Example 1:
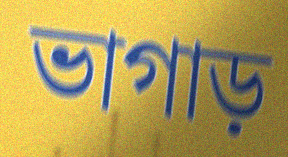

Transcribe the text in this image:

ভাগাড়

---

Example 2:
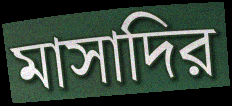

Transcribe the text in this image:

মাসাদির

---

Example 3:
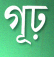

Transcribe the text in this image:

গূঢ়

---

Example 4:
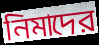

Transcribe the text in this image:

নিমাদের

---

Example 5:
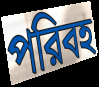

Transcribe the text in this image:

পরিবহ